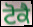
ਟੋਕੈ